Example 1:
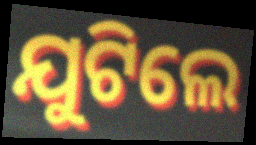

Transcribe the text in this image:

ଯୁଟିଲେ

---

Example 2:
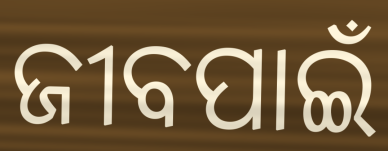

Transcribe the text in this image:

ଜୀବପାଇଁ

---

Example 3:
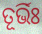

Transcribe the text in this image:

ତୂର୍ଭିଃ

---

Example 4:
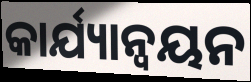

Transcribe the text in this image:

କାର୍ଯ୍ୟାନ୍ବୟନ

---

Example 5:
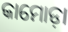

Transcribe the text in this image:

କାମୋଡ଼ା